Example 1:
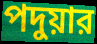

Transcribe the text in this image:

পদুয়ার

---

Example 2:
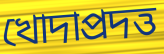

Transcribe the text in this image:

খোদাপ্রদত্ত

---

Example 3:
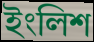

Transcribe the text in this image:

ইংলিশ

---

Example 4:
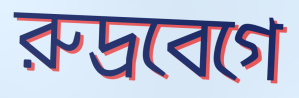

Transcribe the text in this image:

রুদ্রবেগে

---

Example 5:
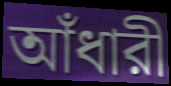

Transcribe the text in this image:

আঁধারী